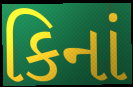
કિનાં